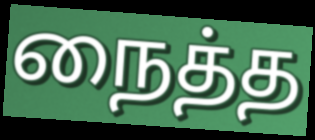
நைத்த